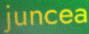
juncea